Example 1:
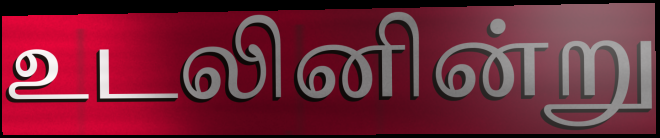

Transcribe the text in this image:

உடலினின்று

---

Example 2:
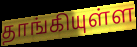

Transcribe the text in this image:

தாங்கியுள்ள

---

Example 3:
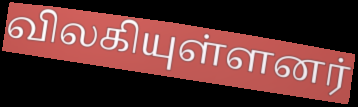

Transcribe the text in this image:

விலகியுள்ளனர்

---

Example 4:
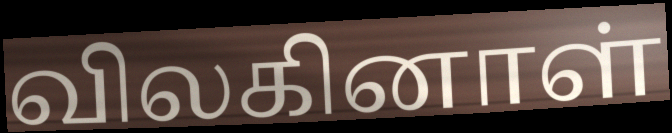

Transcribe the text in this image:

விலகினாள்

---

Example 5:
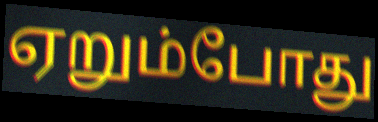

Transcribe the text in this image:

ஏறும்போது